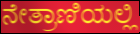
ನೇತ್ರಾಣಿಯಲ್ಲಿ